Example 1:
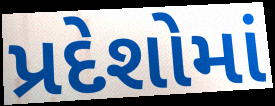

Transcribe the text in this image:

પ્રદેશોમાં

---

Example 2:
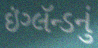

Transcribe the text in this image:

ઇંગ્લૅન્ડનું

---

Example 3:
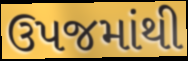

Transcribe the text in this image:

ઉપજમાંથી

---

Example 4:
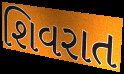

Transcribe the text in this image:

શિવરાત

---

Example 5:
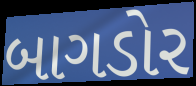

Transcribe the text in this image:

બાગડોર